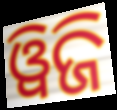
ୱିଜି